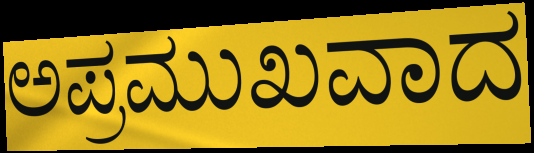
ಅಪ್ರಮುಖವಾದ